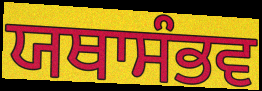
ਯਥਾਸੰਭਵ